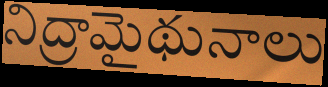
నిద్రామైథునాలు